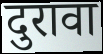
दुरावा